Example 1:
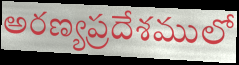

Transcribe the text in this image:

అరణ్యప్రదేశములో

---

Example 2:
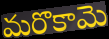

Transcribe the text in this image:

మరొకామె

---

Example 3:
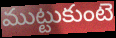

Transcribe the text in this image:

ముట్టుకుంటె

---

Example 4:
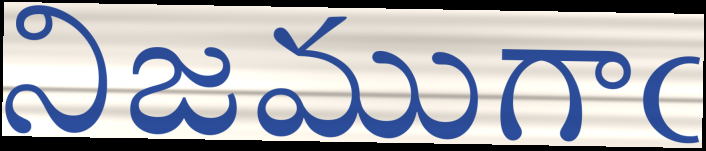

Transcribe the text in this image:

నిజముగాఁ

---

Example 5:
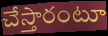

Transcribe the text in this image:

చేస్తారంటూ